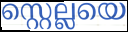
സ്റ്റെല്ലയെ